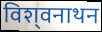
विश्वनाथन